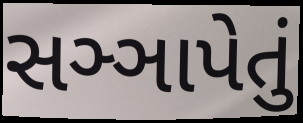
સઞ્ઞાપેતું